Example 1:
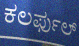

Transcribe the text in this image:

ಕಲರ್ಫುಲ್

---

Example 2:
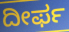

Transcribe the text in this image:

ದೀರ್ಫ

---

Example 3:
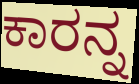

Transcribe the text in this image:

ಕಾರನ್ನ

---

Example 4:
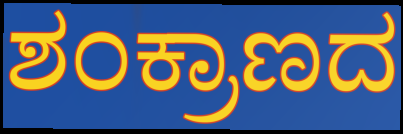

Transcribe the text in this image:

ಶಂಕ್ರಾಣದ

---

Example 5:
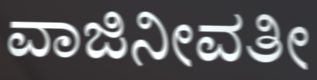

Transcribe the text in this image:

ವಾಜಿನೀವತೀ